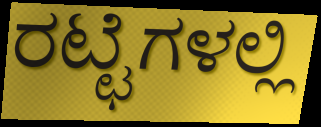
ರಟ್ಟೆಗಳಲ್ಲಿ